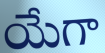
యేగా